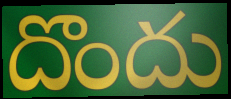
దొందు